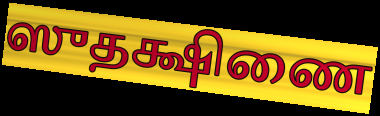
ஸுதக்ஷிணை